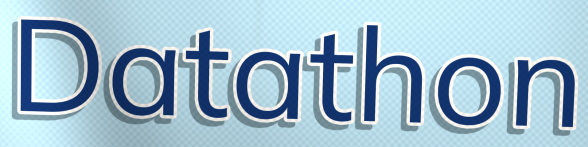
Datathon